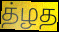
த்ழத